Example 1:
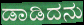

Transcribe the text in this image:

ಡಾಡಿದನು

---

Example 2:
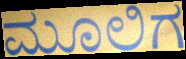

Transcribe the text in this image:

ಮೂಲಿಗ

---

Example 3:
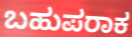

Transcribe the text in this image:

ಬಹುಪರಾಕ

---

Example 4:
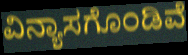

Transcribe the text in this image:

ವಿನ್ಯಾಸಗೊಂಡಿವೆ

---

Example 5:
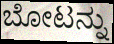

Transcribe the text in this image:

ಬೋಟನ್ನು